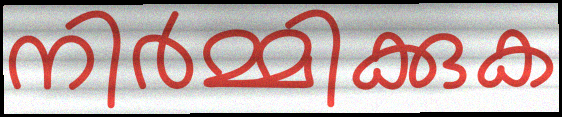
നിർമ്മിക്കുക